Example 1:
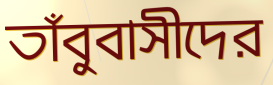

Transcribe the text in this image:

তাঁবুবাসীদের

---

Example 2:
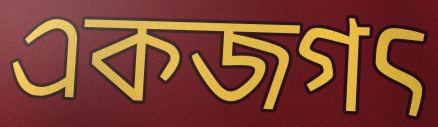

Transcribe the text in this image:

একজগৎ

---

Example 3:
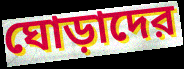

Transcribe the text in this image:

ঘোড়াদের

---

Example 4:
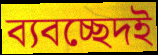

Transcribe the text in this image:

ব্যবচ্ছেদই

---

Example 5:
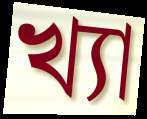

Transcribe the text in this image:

খ্যা